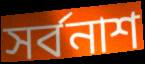
সৰ্বনাশ